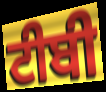
ਟੀਬੀ